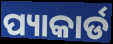
ପ୍ୟାକାର୍ଡ